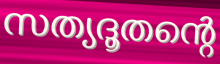
സത്യദൂതന്റെ